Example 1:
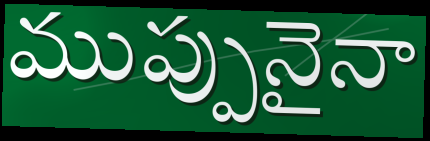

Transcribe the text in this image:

ముప్పునైనా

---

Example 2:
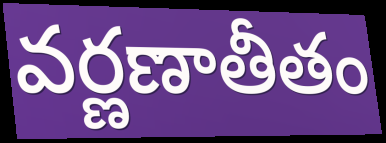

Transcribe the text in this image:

వర్ణణాతీతం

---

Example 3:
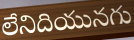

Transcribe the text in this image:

లేనిదియునగు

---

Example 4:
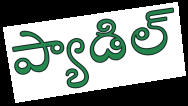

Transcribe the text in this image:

ప్యాడిల్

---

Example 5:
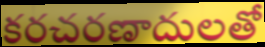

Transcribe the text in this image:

కరచరణాదులతో